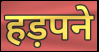
हड़पने